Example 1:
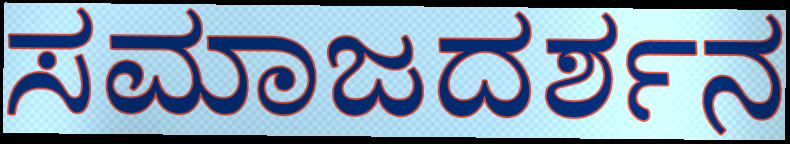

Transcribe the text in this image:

ಸಮಾಜದರ್ಶನ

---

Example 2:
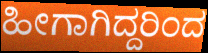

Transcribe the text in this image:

ಹೀಗಾಗಿದ್ದರಿಂದ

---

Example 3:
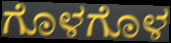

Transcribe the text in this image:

ಗೊಳಗೊಳ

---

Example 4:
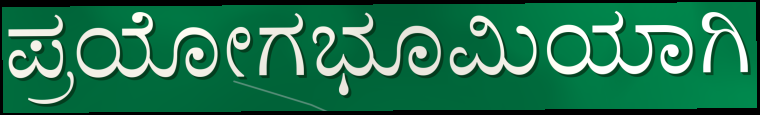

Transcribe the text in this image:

ಪ್ರಯೋಗಭೂಮಿಯಾಗಿ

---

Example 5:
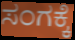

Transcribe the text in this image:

ಸಂಗಕ್ಕೆ